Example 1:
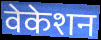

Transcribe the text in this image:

वेकेशन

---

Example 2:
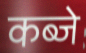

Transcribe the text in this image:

कब्जे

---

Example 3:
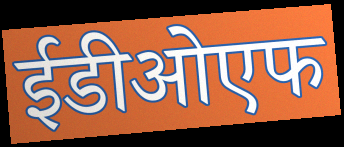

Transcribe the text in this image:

ईडीओएफ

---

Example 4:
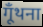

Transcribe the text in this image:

गूँथना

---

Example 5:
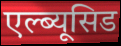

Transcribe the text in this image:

एल्ब्यूसिड